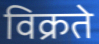
विक्रते